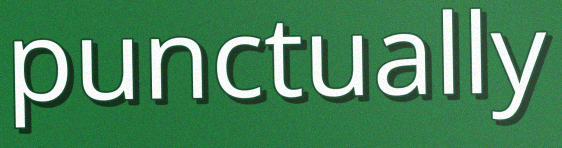
punctually